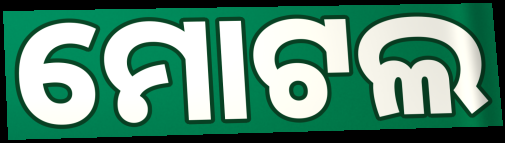
ମୋଟଲ